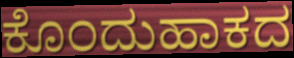
ಕೊಂದುಹಾಕದ